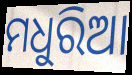
ମଧୁରିଆ